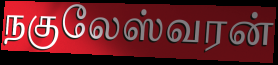
நகுலேஸ்வரன்